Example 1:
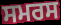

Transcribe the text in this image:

ਸਮਰਸ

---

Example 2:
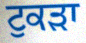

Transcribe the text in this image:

ਟੁਕੜਾ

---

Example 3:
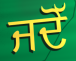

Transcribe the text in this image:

ਜਦੋੱ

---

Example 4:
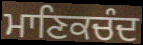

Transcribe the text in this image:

ਮਾਣਿਕਚੰਦ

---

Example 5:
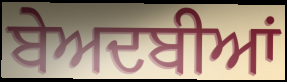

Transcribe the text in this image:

ਬੇਅਦਬੀਆਂ